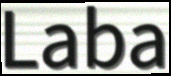
Laba